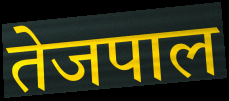
तेजपाल